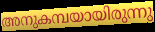
അനുകമ്പയായിരുന്നു